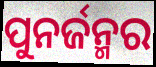
ପୁନର୍ଜନ୍ମର